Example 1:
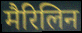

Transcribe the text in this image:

मैरिलिन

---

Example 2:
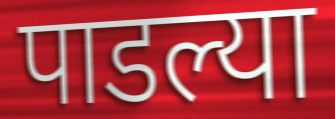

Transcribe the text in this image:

पाडल्या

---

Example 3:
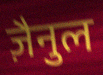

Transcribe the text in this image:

ज़ैनुल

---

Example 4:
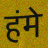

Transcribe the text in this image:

हंमे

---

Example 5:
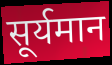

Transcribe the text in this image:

सूर्यमान